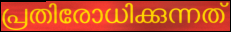
പ്രതിരോധിക്കുന്നത്